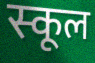
स्कूल